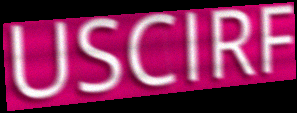
USCIRF